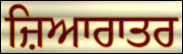
ਜ਼ਿਆਰਾਤਰ